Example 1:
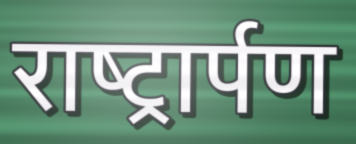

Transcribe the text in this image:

राष्ट्रार्पण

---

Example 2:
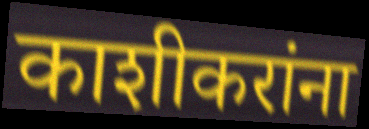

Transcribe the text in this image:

काशीकरांना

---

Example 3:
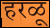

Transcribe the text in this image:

हरळू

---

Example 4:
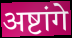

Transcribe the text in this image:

अष्टांगे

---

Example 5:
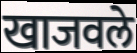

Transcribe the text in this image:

खाजवले